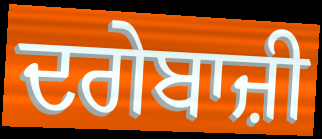
ਦਗੇਬਾਜ਼ੀ